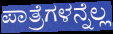
ಪಾತ್ರೆಗಳನ್ನೆಲ್ಲ